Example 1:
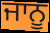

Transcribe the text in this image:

ਜਾਨੂ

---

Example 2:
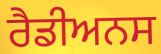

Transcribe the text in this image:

ਰੈਡੀਅਨਸ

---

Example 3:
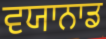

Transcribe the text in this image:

ਵਯਾਨਾਡ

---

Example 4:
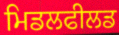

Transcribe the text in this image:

ਮਿਡਲਫੀਲਡ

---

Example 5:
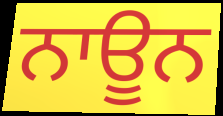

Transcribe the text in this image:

ਨਾਊਨ